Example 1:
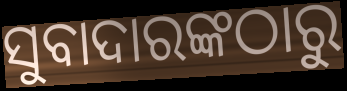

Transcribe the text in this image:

ସୁବାଦାରଙ୍କଠାରୁ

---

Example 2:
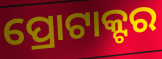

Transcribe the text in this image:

ପ୍ରୋଟାକ୍ଟର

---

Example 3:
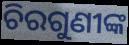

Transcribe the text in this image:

ଚିରଗୁଣୀଙ୍କ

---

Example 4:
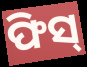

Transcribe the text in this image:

ଫିସ୍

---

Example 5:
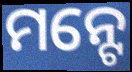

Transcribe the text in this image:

ମନ୍ଟେ